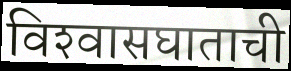
विश्वासघाताची